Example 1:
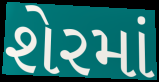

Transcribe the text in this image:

શેરમાં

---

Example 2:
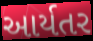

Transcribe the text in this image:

આર્યતર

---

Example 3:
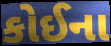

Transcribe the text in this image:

કોઈના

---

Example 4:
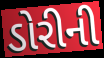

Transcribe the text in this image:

ડોરીની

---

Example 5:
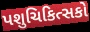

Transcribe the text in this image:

પશુચિકિત્સકો